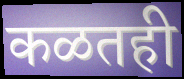
कळतही